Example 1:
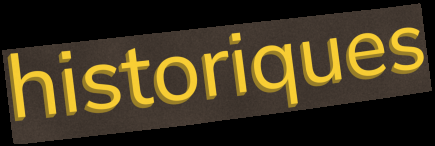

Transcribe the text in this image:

historiques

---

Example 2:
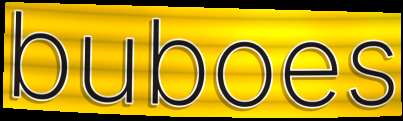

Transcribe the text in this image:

buboes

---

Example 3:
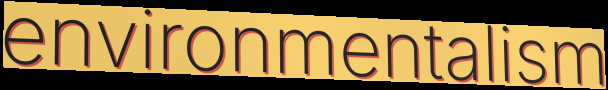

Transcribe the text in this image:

environmentalism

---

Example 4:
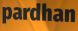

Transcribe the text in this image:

pardhan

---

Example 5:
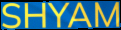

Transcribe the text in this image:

SHYAM